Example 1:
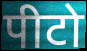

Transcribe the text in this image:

पीटो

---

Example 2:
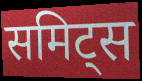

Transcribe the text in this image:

समिट्स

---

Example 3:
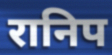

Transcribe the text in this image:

रानिप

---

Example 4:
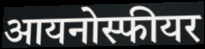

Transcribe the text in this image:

आयनोस्फीयर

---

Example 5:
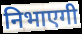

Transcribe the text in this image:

निभाएगी